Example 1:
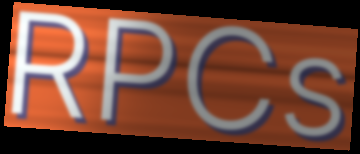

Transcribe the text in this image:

RPCs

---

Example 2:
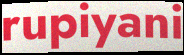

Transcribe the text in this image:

rupiyani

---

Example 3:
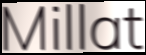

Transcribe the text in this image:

Millat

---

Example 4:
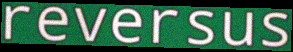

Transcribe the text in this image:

reversus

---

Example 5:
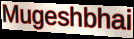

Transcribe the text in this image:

Mugeshbhai